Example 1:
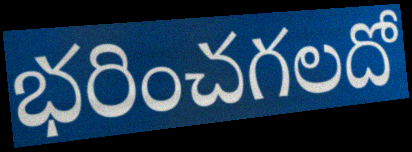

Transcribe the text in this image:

భరించగలదో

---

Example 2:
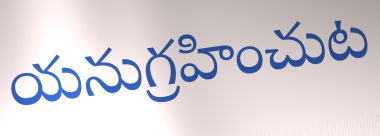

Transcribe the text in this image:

యనుగ్రహించుట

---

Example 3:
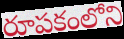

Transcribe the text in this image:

రూపకంలోని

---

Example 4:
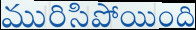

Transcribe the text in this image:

మురిసిపోయింది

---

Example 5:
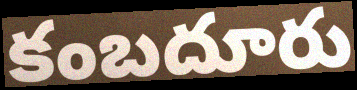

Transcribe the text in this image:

కంబదూరు